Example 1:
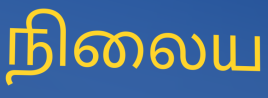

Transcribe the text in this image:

நிலைய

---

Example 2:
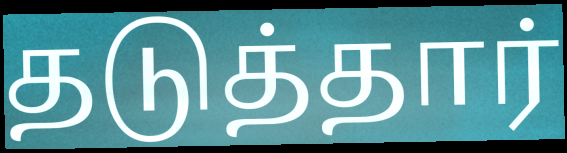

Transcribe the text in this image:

தடுத்தார்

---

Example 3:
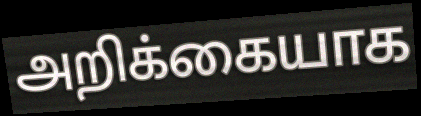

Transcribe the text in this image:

அறிக்கையாக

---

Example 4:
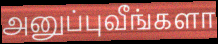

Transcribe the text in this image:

அனுப்புவீங்களா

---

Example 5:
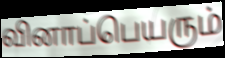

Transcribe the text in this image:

வினாப்பெயரும்